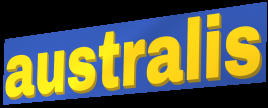
australis